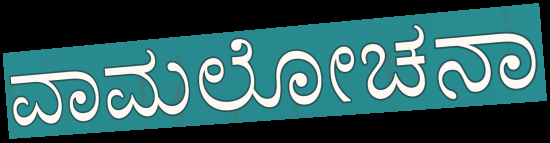
ವಾಮಲೋಚನಾ